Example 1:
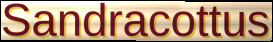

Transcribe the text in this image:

Sandracottus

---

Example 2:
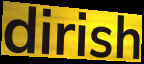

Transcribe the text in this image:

dirish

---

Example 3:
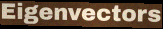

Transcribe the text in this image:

Eigenvectors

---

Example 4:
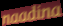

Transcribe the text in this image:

naadina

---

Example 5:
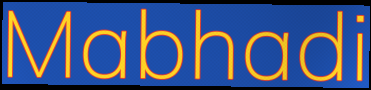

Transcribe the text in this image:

Mabhadi